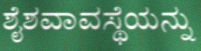
ಶೈಶವಾವಸ್ಥೆಯನ್ನು